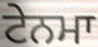
ਟੇਨਮਾ